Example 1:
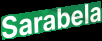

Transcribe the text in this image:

Sarabela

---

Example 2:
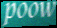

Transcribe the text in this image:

poow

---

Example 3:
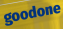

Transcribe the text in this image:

goodone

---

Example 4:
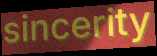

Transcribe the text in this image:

sincerity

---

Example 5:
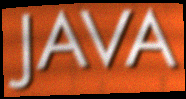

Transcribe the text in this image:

JAVA